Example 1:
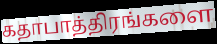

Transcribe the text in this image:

கதாபாத்திரங்களை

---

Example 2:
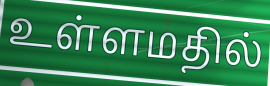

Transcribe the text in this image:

உள்ளமதில்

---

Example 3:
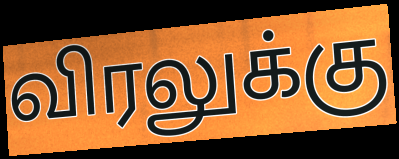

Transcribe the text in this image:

விரலுக்கு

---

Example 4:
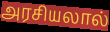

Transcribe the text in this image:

அரசியலால்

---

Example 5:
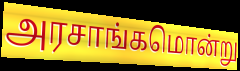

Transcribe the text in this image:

அரசாங்கமொன்று